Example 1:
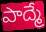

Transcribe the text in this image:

పాద్మే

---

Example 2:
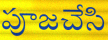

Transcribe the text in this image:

పూజచేసి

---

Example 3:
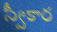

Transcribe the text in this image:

స్వీకార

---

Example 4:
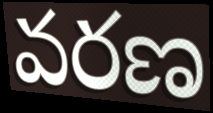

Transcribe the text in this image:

వరణ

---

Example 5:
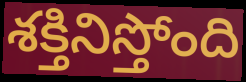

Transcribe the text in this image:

శక్తినిస్తోంది